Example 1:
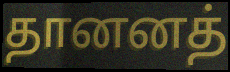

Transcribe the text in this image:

தானனத்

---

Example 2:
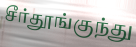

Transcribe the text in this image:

சீர்தூங்குந்து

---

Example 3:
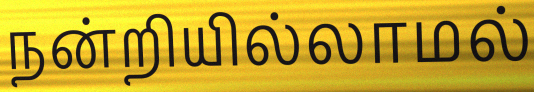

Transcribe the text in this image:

நன்றியில்லாமல்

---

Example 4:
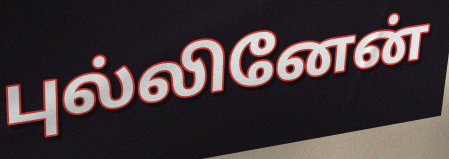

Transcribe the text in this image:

புல்லினேன்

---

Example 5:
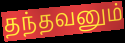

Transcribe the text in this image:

தந்தவனும்